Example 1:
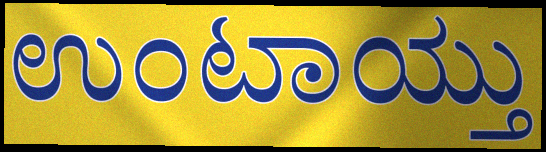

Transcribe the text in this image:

ಉಂಟಾಯ್ತು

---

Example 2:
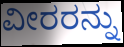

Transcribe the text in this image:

ವೀರರನ್ನು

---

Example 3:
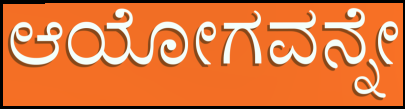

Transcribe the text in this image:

ಆಯೋಗವನ್ನೇ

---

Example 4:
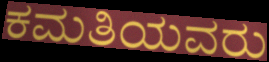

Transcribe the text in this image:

ಕಮತಿಯವರು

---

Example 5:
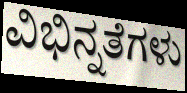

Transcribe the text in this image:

ವಿಭಿನ್ನತೆಗಳು